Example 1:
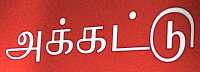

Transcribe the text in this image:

அக்கட்டு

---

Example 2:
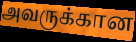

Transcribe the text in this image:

அவருக்கான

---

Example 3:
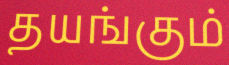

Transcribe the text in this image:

தயங்கும்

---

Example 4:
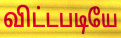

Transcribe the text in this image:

விட்டபடியே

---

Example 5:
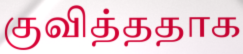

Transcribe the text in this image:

குவித்ததாக